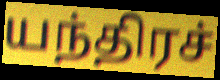
யந்திரச்